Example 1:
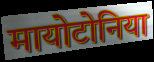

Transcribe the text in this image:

मायोटोनिया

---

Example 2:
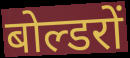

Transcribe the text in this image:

बोल्डरों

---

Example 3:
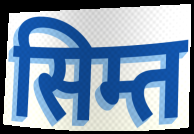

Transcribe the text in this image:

सिम्त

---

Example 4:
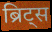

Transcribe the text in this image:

ब्रिट्स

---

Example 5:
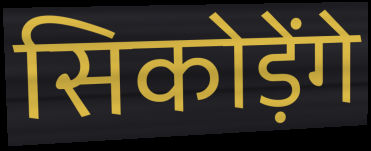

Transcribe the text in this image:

सिकोड़ेंगे